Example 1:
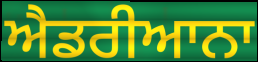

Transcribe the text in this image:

ਐਡਰੀਆਨਾ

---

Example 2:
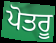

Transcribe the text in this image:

ਪੋਤਰੂ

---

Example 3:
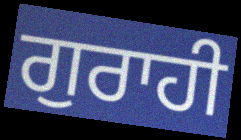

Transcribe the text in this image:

ਗੁਰਾਹੀ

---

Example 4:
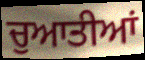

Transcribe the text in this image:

ਚੁਆਤੀਆਂ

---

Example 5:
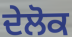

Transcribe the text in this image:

ਦੇਲੋਕ